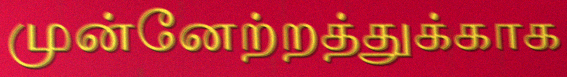
முன்னேற்றத்துக்காக